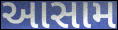
આસામ